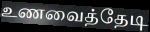
உணவைத்தேடி